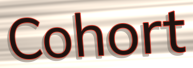
Cohort